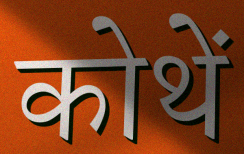
कोथें